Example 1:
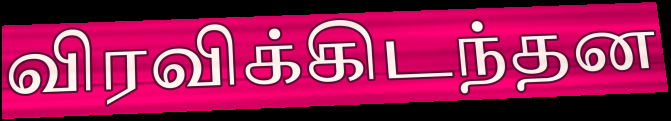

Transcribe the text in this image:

விரவிக்கிடந்தன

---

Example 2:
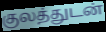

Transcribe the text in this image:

குலத்துடன்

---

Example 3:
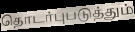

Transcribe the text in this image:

தொடர்புபடுத்தும்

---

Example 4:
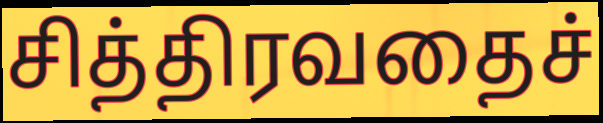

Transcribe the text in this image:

சித்திரவதைச்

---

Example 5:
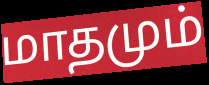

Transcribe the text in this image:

மாதமும்